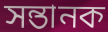
সন্তানক